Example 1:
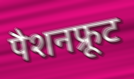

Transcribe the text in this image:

पैशनफ्रूट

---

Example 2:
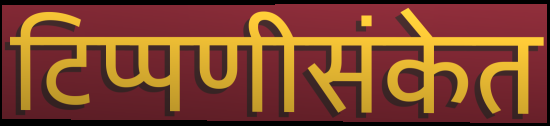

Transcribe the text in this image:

टिप्पणीसंकेत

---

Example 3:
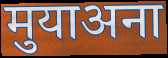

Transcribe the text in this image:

मुयाअना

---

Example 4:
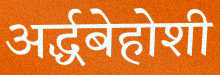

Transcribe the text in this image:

अर्द्धबेहोशी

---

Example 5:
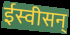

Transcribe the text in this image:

ईस्वीसन्